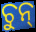
ଚୁନ୍